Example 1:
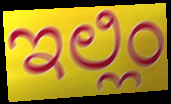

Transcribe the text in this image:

ಇಲ್ಲಿಂ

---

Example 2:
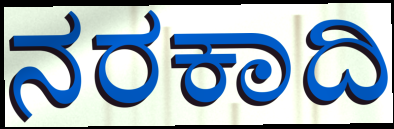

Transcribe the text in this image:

ನರಕಾದಿ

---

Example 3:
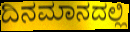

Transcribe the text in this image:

ದಿನಮಾನದಲ್ಲಿ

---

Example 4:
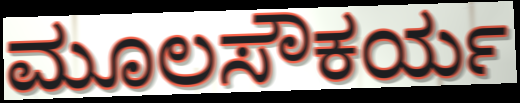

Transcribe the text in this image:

ಮೂಲಸೌಕರ್ಯ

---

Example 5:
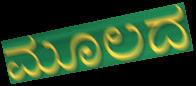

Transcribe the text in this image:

ಮೂಲದ